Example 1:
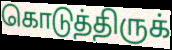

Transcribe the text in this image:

கொடுத்திருக்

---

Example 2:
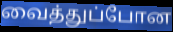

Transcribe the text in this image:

வைத்துப்போன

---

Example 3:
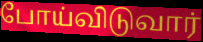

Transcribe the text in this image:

போய்விடுவார்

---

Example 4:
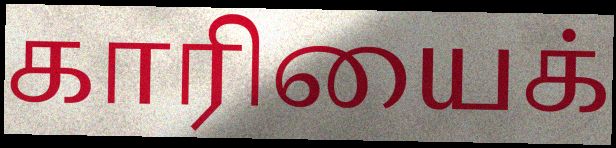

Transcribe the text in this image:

காரியைக்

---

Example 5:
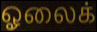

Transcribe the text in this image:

ஓலைக்